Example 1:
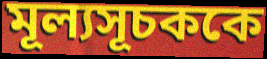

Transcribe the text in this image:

মূল্যসূচককে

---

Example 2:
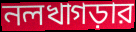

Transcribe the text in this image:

নলখাগড়ার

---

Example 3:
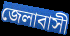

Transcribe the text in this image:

জেলাবাসী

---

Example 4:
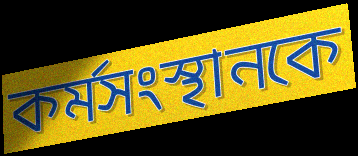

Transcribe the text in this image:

কর্মসংস্থানকে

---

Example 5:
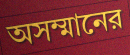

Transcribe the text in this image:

অসম্মানের